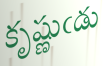
కృష్ణుఁడు